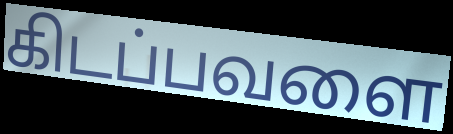
கிடப்பவளை